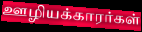
ஊழியக்காரர்கள்